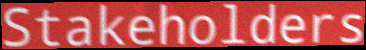
Stakeholders